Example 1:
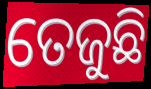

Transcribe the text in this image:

ତେଜୁଛି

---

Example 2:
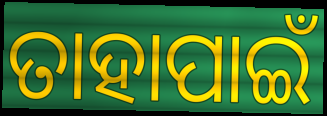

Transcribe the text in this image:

ତାହାପାଇଁ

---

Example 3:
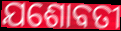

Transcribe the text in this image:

ଯଶୋବତୀ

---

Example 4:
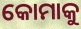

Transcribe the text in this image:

କୋମାକୁ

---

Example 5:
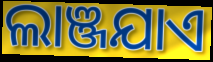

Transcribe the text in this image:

ଲାଞ୍ଜଯାଏ